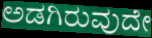
ಅಡಗಿರುವುದೇ